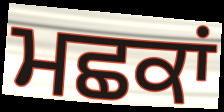
ਮਛਕਾਂ